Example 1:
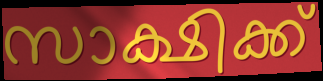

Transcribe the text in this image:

സാക്ഷിക്ക്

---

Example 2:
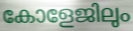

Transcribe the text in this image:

കോളേജിലും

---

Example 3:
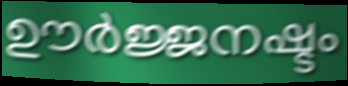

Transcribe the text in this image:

ഊർജ്ജനഷ്ടം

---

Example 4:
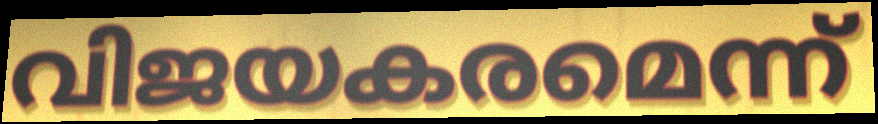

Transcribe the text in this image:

വിജയകരമെന്ന്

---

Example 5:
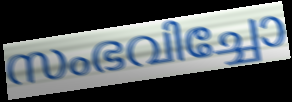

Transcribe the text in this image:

സംഭവിച്ചോ